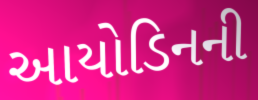
આયોડિનની